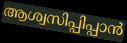
ആശ്വസിപ്പിപ്പാൻ